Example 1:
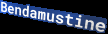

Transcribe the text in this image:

Bendamustine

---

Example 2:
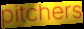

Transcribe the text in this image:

pitchers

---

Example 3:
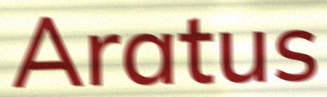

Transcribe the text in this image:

Aratus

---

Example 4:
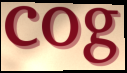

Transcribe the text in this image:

cog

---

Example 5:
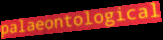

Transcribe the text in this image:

palaeontological